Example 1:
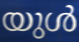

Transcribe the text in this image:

യുൾ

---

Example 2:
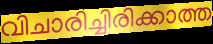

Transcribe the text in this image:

വിചാരിച്ചിരിക്കാത്ത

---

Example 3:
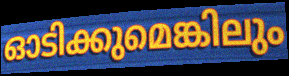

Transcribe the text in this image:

ഓടിക്കുമെങ്കിലും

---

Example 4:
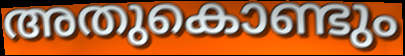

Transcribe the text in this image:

അതുകൊണ്ടും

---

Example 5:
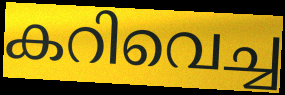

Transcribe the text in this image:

കറിവെച്ച